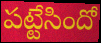
పట్టేసిందో